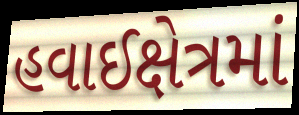
હવાઈક્ષેત્રમાં